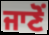
ਜਾਣੋਂ